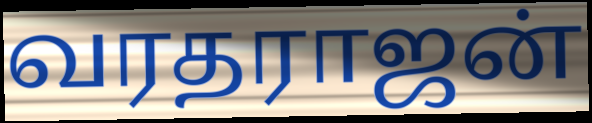
வரதராஜன்